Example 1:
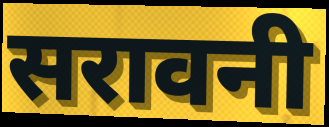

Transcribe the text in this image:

सरावनी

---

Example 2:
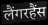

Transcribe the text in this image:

लैंगरहैंस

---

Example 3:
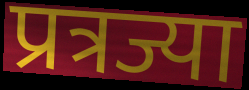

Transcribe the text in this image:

प्रत्रज्या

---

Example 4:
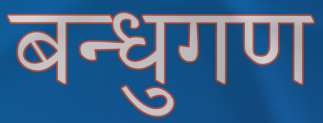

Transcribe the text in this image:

बन्धुगण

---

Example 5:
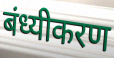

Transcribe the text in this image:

बंध्यीकरण